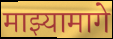
माझ्यामागे